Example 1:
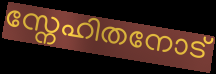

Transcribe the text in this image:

സ്നേഹിതനോട്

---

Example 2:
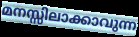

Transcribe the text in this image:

മനസ്സിലാക്കാവുന്ന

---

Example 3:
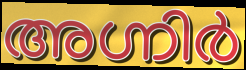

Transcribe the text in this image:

അഗ്നിർ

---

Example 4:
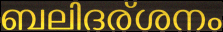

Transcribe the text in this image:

ബലിദര്ശനം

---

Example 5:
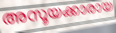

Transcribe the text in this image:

അസൂയക്കാരായ